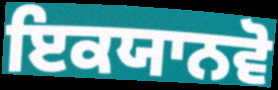
ਇਕਯਾਨਵੋ